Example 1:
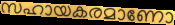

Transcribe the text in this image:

സഹായകരമാണോ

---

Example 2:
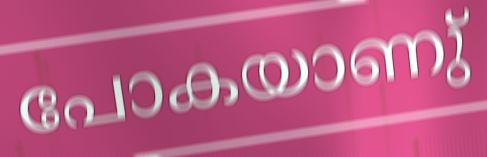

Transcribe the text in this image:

പോകയാണു്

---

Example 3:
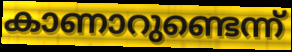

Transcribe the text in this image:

കാണാറുണ്ടെന്ന്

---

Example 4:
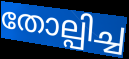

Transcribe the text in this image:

തോല്പിച്ച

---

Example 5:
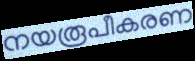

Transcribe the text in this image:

നയരൂപീകരണ